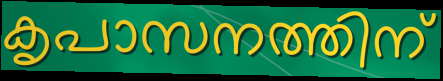
കൃപാസനത്തിന്